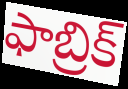
ఫాబ్రిక్